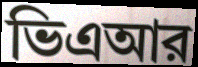
ভিএআর